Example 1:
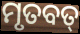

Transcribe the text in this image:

ମୃତବତ୍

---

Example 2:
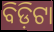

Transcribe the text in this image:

ବିଡ଼ିଟା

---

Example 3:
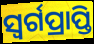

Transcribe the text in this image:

ସ୍ୱର୍ଗପ୍ରାପ୍ତି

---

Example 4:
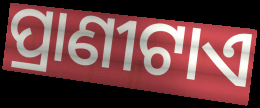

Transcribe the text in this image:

ପ୍ରାଣୀଟାଏ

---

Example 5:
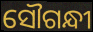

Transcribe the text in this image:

ସୌଗନ୍ଧୀ